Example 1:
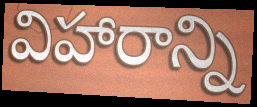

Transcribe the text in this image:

విహారాన్ని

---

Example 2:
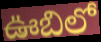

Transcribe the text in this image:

ఊబిలో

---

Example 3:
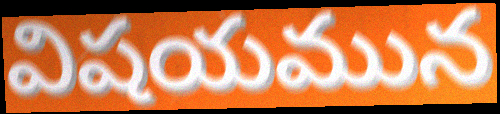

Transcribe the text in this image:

విషయమున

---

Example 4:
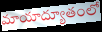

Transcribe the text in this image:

మాయాద్యూతంలో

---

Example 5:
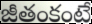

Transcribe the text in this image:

జీతంకంటే